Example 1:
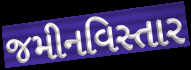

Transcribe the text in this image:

જમીનવિસ્તાર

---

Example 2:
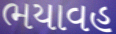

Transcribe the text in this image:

ભયાવહ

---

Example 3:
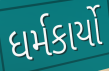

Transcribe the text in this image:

ધર્મકાર્યો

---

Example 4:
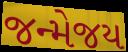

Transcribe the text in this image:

જન્મેજય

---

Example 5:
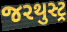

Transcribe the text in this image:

જરથુસ્ટ્ર